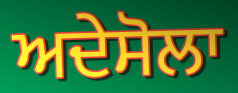
ਅਦੇਸੋਲਾ